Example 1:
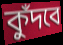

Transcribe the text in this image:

কুঁদবে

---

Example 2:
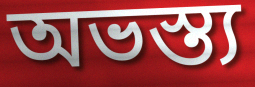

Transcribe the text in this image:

অভস্ত্য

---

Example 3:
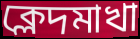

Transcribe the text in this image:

ক্লেদমাখা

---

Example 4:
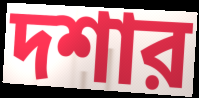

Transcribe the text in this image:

দশার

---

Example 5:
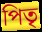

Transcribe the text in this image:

পিতৃ